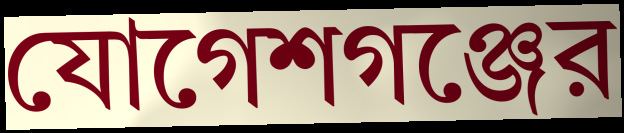
যোগেশগঞ্জের